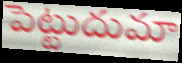
పెట్టుదుమా